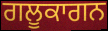
ਗਲੂਕਾਗਨ